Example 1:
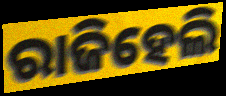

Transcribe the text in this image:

ରାଜିହେଲି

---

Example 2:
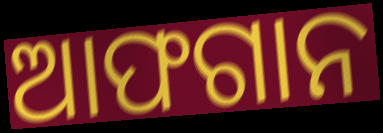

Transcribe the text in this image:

ଆଫଗାନ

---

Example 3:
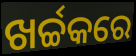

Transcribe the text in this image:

ଖର୍ଚ୍ଚକରେ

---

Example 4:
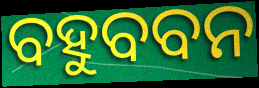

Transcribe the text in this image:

ବହୁବବନ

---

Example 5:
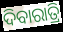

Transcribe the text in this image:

ଦିବାରାତ୍ରି